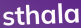
sthala